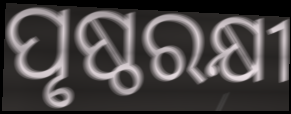
ପୃଷ୍ଠରକ୍ଷୀ